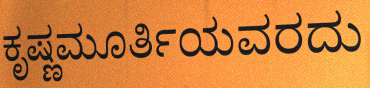
ಕೃಷ್ಣಮೂರ್ತಿಯವರದು